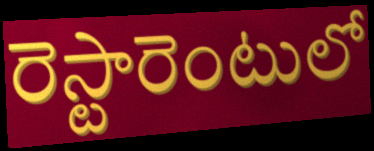
రెస్టారెంటులో